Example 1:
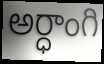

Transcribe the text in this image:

అర్ధాంగి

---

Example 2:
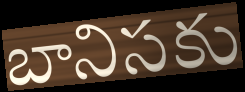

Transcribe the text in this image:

బానిసకు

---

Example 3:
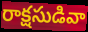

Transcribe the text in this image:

రాక్షసుడివా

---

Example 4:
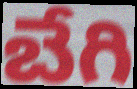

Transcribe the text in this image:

బేగి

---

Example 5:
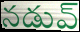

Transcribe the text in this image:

నడువ్